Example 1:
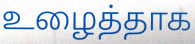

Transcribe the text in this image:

உழைத்தாக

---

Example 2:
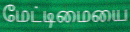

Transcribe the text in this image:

மேட்டிமையை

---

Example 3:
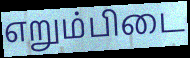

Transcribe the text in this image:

எறும்பிடை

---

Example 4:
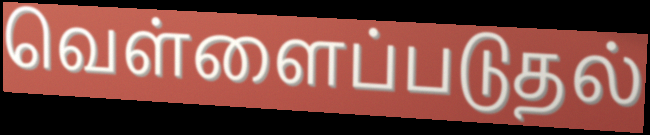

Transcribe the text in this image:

வெள்ளைப்படுதல்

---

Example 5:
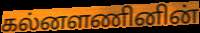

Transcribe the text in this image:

கல்னளணினின்